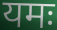
यमः